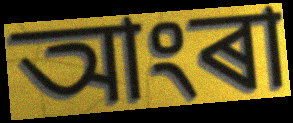
আংৰা